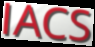
IACS